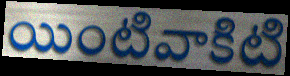
యింటివాకిటి